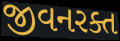
જીવનરક્ત